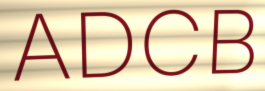
ADCB